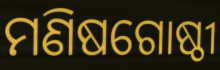
ମଣିଷଗୋଷ୍ଠୀ